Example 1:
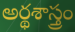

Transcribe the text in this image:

అర్థశాస్త్రం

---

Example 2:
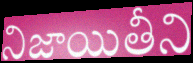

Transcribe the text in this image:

నిజాయితీని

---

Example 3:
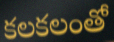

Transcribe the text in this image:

కలకలంతో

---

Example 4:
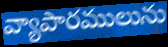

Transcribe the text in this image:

వ్యాపారములును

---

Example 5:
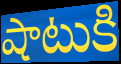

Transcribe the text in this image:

షాటుకి